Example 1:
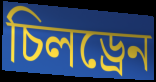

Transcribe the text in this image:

চিলড্ৰেন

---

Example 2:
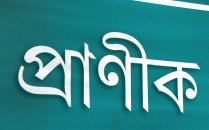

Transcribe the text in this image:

প্ৰাণীক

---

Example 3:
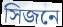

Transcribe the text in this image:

সিজনে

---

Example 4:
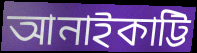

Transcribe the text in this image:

আনাইকাট্টি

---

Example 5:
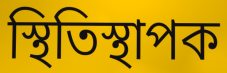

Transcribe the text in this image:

স্থিতিস্থাপক